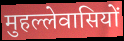
मुहल्लेवासियों